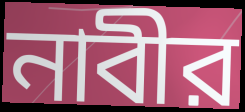
নাবীর